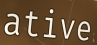
ative